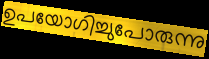
ഉപയോഗിച്ചുപോരുന്നു